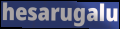
hesarugalu